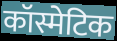
कॉस्मेटिक